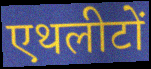
एथलीटों